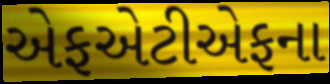
એફએટીએફના